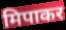
मिपाकर